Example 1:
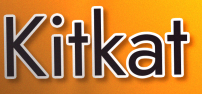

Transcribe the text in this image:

Kitkat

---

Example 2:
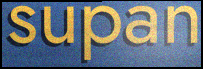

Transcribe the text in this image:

supan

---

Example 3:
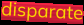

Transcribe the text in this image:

disparate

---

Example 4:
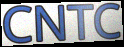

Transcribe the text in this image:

CNTC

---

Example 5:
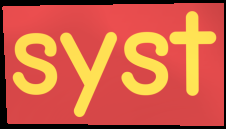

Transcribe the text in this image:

syst